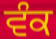
ਵੰਕ